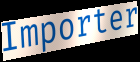
Importer